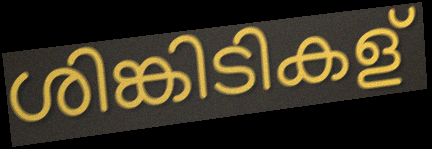
ശിങ്കിടികള്